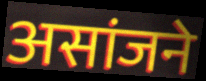
असांजने